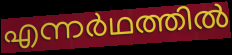
എന്നർഥത്തിൽ